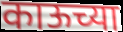
काऊच्या